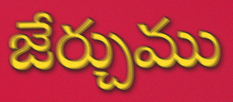
జేర్చుము